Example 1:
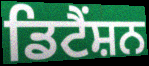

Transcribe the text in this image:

ਡਿਟੈਂਸ਼ਨ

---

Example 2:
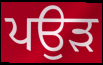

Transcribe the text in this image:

ਪਉੜ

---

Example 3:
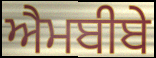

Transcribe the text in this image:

ਐਮਬੀਬੇ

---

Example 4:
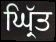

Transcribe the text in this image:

ਘ੍ਰਿੱਤ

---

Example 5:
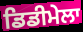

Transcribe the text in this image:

ਡਿਡੀਮੇਲਾ